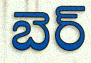
బెర్